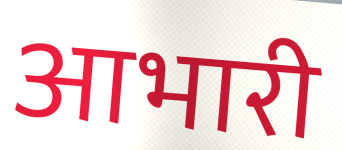
आभारी